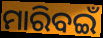
ମାରିବଇଁ